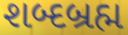
શબ્દબ્રહ્મ